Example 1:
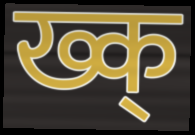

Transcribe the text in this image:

ख्क्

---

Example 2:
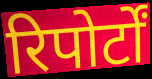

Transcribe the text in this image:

रिपोर्टों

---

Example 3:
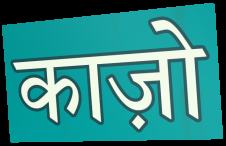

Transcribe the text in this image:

काज़ो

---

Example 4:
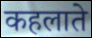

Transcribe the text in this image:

कहलाते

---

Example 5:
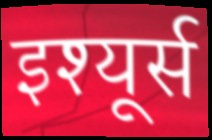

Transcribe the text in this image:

इश्यूर्स